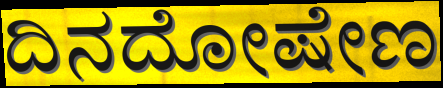
ದಿನದೋಷೇಣ